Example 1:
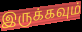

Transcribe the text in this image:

இருக்கவும்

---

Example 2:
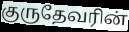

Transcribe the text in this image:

குருதேவரின்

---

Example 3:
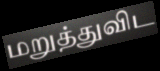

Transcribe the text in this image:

மறுத்துவிட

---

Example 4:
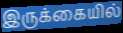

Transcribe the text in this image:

இருக்கையில்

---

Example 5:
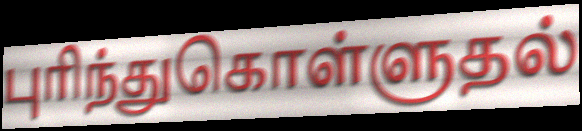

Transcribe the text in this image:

புரிந்துகொள்ளுதல்